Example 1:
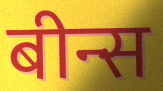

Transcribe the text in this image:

बीन्‍स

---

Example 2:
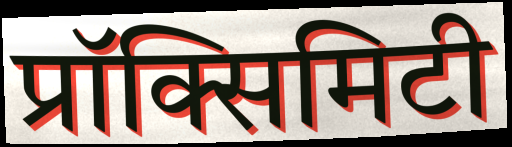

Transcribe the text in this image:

प्रॉक्सिमिटी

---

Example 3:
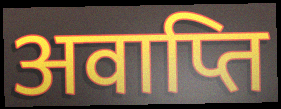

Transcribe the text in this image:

अवाप्ति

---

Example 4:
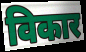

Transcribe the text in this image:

विकार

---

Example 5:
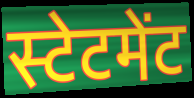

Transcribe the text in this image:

स्टेटमेंट